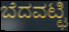
ಬೆದವಟ್ಟಿ